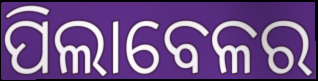
ପିଲାବେଳର